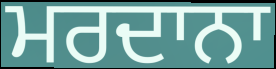
ਮਰਦਾਨਾ